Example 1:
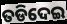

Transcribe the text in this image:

ତଡିଦେଇ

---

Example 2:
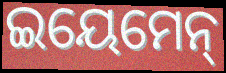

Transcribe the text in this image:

ଇୟେମେନ୍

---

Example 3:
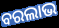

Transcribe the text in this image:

ବରଲାଭ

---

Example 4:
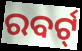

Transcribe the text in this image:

ରବର୍ଟ୍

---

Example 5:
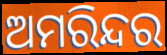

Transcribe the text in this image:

ଅମରିନ୍ଦର